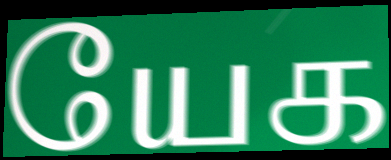
யேக